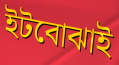
ইটবোঝাই